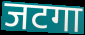
जटगा